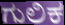
ಗುಲಿಕ